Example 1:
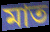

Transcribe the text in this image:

মাত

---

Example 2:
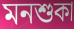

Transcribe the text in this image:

মনশুকা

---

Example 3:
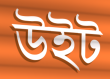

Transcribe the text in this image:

উইট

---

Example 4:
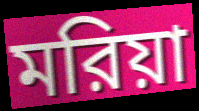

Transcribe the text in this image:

মরিয়া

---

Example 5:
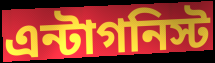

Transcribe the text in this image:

এন্টাগনিস্ট